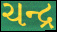
ચન્દ્ર